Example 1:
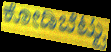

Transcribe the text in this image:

ಕೋಡಿಬೆಟ್ಟು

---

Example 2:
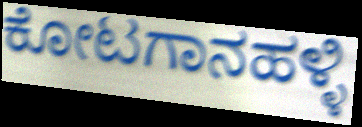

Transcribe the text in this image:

ಕೋಟಗಾನಹಳ್ಳಿ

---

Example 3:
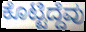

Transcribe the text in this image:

ಕೊಟ್ಟಿದ್ದೆವು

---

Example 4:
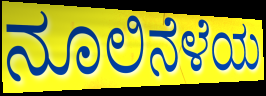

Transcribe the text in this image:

ನೂಲಿನೆಳೆಯ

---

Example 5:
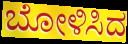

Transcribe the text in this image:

ಬೋಳಿಸಿದ